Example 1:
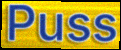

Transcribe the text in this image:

Puss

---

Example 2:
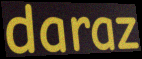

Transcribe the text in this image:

daraz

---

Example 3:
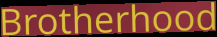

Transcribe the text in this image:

Brotherhood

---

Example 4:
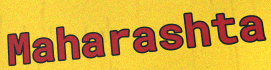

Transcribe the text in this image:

Maharashta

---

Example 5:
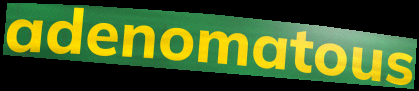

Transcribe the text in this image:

adenomatous